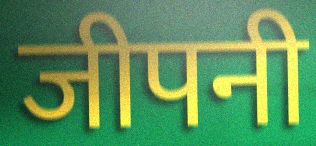
जीपनी